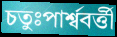
চতুঃপার্শ্ববর্ত্তী